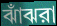
ঝাঁঝরা